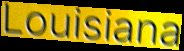
Louisiana